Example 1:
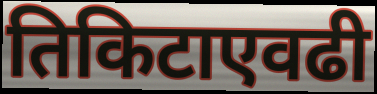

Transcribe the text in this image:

तिकिटाएवढी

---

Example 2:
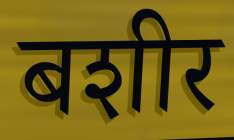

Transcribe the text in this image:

बशीर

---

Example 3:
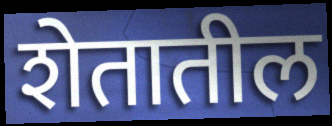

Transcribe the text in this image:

शेतातील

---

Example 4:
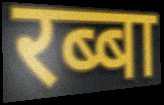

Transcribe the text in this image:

रब्बा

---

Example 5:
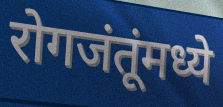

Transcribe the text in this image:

रोगजंतूंमध्ये